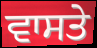
ਵਾਸਤੇ